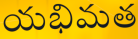
యభిమత